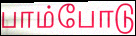
பாம்போடு